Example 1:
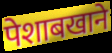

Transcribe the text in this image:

पेशाबखाने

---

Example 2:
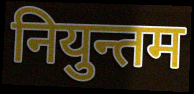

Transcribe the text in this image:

नियुन्तम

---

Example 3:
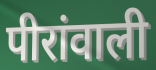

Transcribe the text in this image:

पीरांवाली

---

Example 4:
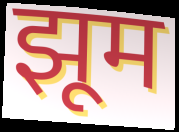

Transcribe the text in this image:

झूम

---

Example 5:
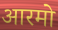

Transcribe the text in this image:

आरमो